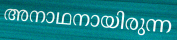
അനാഥനായിരുന്ന